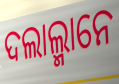
ଦଲାଲ୍ମାନେ